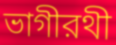
ভাগীরথী